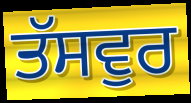
ਤੱਸਵੁਰ